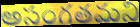
అసంగతమని